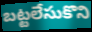
బట్టలేసుకొని